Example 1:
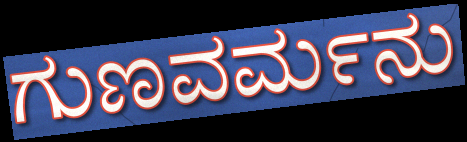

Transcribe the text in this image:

ಗುಣವರ್ಮನು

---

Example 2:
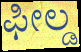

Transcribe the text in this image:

ಫೀಲ್ಡ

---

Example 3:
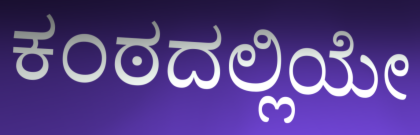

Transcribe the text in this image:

ಕಂಠದಲ್ಲಿಯೇ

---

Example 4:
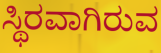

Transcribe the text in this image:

ಸ್ಥಿರವಾಗಿರುವ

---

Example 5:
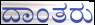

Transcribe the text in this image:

ದಾಂತರು